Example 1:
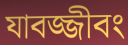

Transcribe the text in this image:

যাবজ্জীবং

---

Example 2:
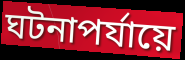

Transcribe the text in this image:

ঘটনাপর্যায়ে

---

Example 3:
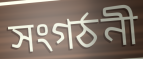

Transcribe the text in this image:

সংগঠনী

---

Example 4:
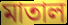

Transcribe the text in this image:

মাতাল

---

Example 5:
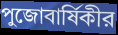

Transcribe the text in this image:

পুজোবার্ষিকীর